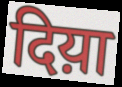
दिय़ा